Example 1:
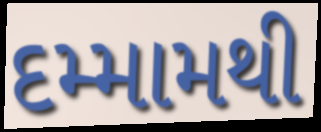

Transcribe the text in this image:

દમ્મામથી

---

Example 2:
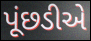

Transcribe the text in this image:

પૂંછડીએ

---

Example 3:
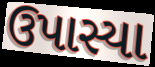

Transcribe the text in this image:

ઉપાસ્યા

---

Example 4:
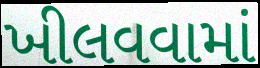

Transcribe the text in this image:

ખીલવવામાં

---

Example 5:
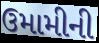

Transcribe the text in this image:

ઉમામીની